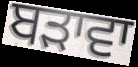
ਬੜਾਵਾ